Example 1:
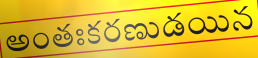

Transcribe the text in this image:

అంతఃకరణుడయిన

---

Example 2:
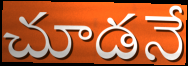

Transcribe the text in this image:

చూడనే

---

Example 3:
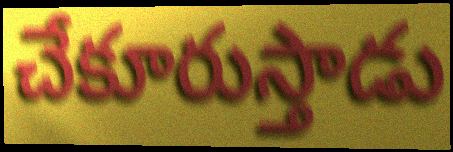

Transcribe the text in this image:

చేకూరుస్తాడు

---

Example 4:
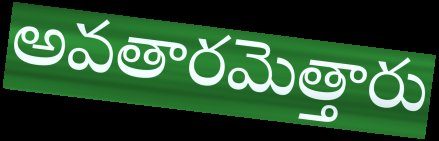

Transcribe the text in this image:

అవతారమెత్తారు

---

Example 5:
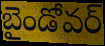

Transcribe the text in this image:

బైండోవర్